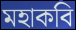
মহাকবি